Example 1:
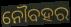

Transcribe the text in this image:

ନୌବହର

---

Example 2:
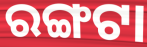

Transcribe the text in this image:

ରଙ୍ଗଟା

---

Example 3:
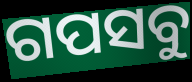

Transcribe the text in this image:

ଗପସବୁ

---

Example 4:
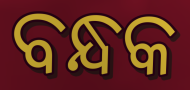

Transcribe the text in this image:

ବନ୍ଧକ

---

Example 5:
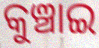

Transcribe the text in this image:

କୁଞ୍ଚାଇ